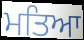
ਮਤਿਆ